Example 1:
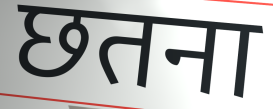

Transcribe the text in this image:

छतना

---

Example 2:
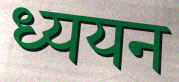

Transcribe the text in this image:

ध्ययन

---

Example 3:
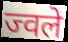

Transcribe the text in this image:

ज्वले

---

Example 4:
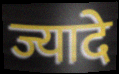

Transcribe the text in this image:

ज्यादे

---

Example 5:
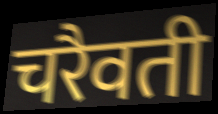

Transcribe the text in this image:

चरैवती